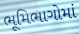
ભૂમિભાગોમાં